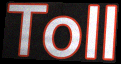
Toll